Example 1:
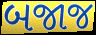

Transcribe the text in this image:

બજાજ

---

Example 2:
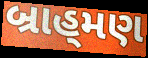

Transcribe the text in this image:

બ્રાહ્‌મણ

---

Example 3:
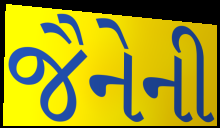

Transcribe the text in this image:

જૈનેની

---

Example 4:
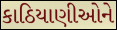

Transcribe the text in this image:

કાઠિયાણીઓને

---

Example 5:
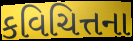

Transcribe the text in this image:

કવિચિત્તના